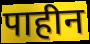
पाहीन